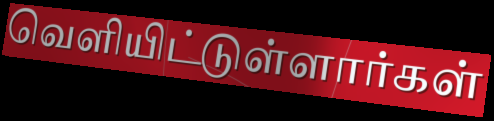
வெளியிட்டுள்ளார்கள்